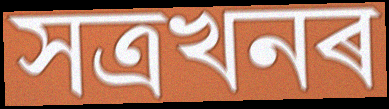
সত্ৰখনৰ